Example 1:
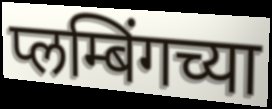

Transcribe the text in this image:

प्लम्बिंगच्या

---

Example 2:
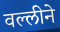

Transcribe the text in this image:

वल्लीने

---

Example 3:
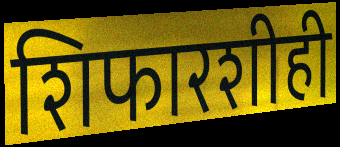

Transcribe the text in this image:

शिफारशीही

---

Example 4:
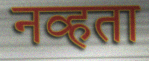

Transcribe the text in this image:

नव्हता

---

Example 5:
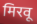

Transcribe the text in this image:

मिरवू